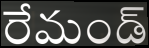
రేమండ్